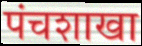
पंचशाखा